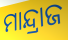
ମାନ୍ଦ୍ରାଜ